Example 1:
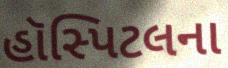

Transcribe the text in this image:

હૉસ્પિટલના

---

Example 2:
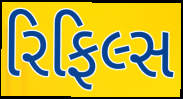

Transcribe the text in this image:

રિફિલ્સ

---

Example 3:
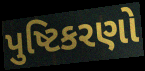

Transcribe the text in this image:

પુષ્ટિકરણો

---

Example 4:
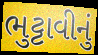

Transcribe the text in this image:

ભુટ્ટાવીનું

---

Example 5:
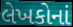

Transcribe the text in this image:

લેખકોનાં